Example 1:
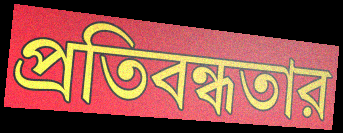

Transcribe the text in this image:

প্রতিবন্ধতার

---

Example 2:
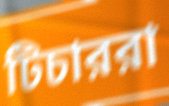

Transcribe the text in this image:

টিচাররা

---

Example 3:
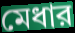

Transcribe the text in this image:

মেধার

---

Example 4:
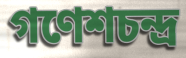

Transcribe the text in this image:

গণেশচন্দ্র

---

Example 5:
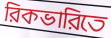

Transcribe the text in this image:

রিকভারিতে